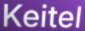
Keitel